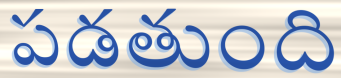
పడతుంది